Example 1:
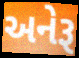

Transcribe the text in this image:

અનેરૂ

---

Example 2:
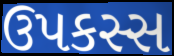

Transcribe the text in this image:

ઉપકસ્સ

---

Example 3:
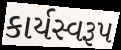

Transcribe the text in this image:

કાર્યસ્વરૂપ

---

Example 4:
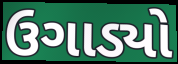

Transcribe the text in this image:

ઉગાડ્યો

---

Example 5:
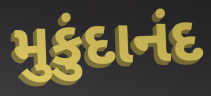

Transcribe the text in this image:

મુકુંદાનંદ